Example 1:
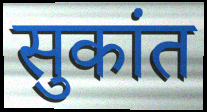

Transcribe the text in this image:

सुकांत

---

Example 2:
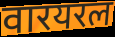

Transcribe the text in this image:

वारयरल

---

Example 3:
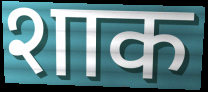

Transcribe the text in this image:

शाक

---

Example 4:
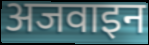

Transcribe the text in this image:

अजवाइन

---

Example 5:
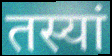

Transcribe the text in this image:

तस्यां